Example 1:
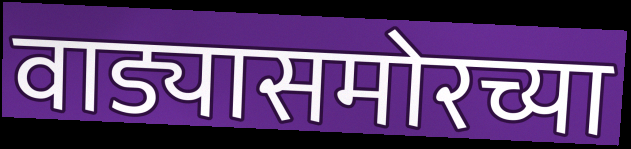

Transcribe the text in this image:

वाड्यासमोरच्या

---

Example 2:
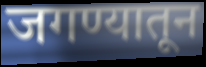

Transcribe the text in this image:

जगण्यातून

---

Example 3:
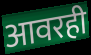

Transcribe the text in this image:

आवरही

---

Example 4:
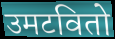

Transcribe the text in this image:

उमटवितो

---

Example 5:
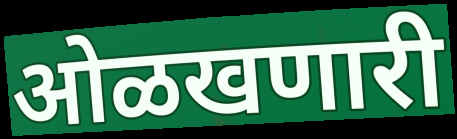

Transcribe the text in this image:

ओळखणारी